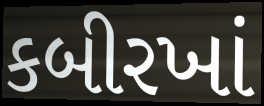
કબીરખાં